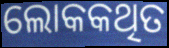
ଲୋକକଥିତ